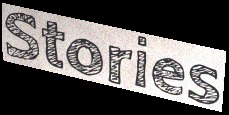
Stories